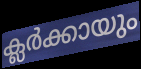
ക്ലർക്കായും